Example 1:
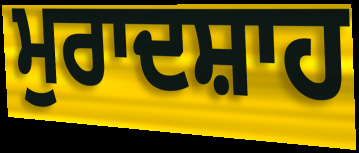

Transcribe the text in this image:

ਮੁਰਾਦਸ਼ਾਹ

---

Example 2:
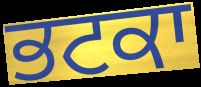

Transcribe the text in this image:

ਭਟਕਾ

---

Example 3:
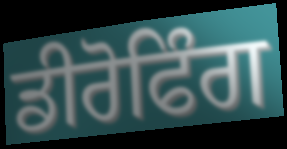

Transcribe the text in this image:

ਡੀਰੋਫਿੰਗ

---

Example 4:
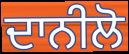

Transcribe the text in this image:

ਦਾਨੀਲੋ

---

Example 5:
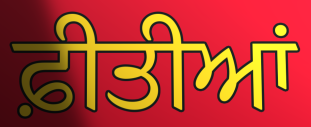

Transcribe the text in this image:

ਫ਼ੀਤੀਆਂ